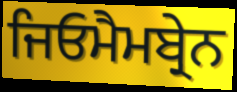
ਜਿਓਮੈਮਬ੍ਰੇਨ